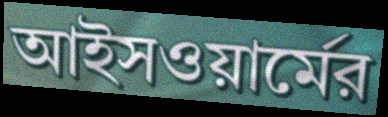
আইসওয়ার্মের